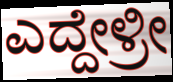
ಎದ್ದೇಳ್ರೀ